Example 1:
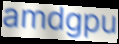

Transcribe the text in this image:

amdgpu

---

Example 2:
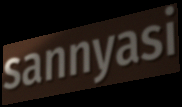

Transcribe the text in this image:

sannyasi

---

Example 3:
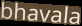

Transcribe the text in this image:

bhavala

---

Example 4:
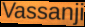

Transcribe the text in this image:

Vassanji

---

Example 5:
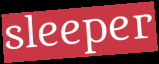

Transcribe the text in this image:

sleeper